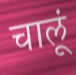
चालूं